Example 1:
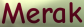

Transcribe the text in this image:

Merak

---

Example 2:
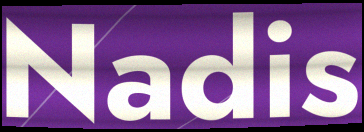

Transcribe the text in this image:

Nadis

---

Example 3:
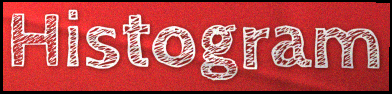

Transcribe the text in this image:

Histogram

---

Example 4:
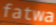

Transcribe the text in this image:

fatwa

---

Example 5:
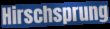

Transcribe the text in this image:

Hirschsprung